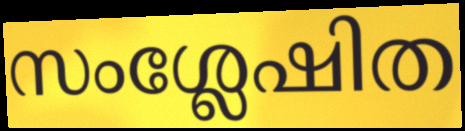
സംശ്ലേഷിത